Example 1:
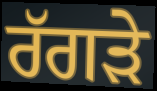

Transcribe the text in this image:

ਰੱਗੜੇ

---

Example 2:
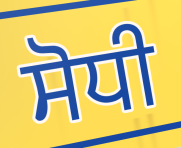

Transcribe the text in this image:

ਸੋਧੀ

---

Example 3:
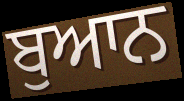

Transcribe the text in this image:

ਬੁਆਨ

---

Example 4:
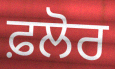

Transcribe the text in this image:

ਫ਼ਲੋਰ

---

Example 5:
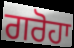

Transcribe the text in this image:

ਗਰੋਹਾ